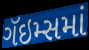
ગૅઇમ્સમાં